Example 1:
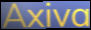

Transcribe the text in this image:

Axiva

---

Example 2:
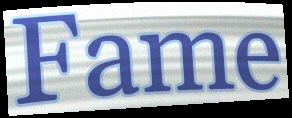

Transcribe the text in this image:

Fame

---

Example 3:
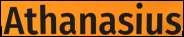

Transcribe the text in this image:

Athanasius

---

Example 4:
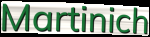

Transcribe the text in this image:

Martinich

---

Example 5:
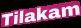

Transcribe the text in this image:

Tilakam